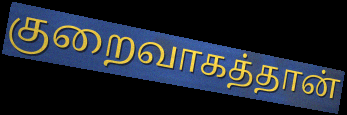
குறைவாகத்தான்